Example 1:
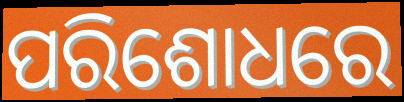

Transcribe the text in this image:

ପରିଶୋଧରେ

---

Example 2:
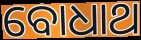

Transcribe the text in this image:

ବୋଧାଥ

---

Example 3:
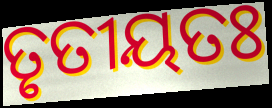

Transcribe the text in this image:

ତୃତୀୟତଃ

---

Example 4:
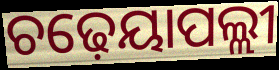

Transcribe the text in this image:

ଚଢ଼େୟାପଲ୍ଲୀ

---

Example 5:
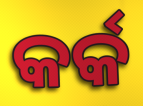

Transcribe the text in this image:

କର୍କ